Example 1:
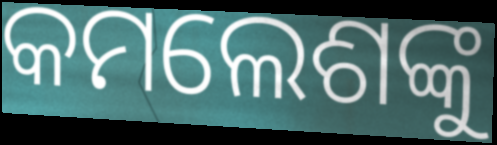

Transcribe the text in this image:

କମଲେଶଙ୍କୁ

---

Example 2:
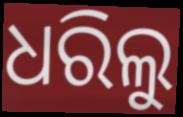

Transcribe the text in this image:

ଧରିଲୁ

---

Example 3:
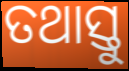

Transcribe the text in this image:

ତଥାସ୍ତୁ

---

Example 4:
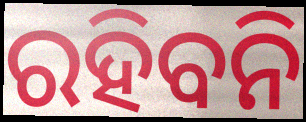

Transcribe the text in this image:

ରହିବନି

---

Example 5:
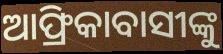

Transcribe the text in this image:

ଆଫ୍ରିକାବାସୀଙ୍କୁ